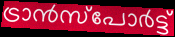
ട്രാൻസ്പോർട്ട്